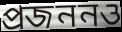
প্রজননও